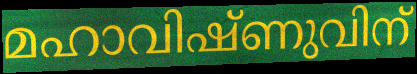
മഹാവിഷ്ണുവിന്